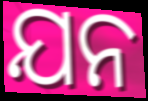
ଯନ